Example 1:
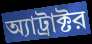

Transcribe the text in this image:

অ্যাট্রাক্টর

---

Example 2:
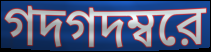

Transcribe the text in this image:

গদগদম্বরে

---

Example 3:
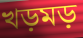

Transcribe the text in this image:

খড়মড়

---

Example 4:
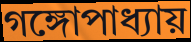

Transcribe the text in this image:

গঙ্গোপাধ্যায়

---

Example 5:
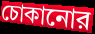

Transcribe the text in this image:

চোকানোর